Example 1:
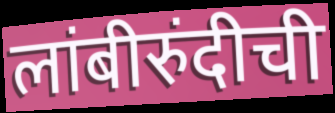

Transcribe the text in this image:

लांबीरुंदीची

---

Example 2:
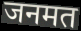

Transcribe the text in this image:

जनमत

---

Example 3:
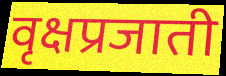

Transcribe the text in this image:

वृक्षप्रजाती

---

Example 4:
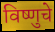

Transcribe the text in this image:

विष्णुचे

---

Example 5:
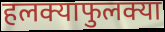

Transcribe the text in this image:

हलक्याफुलक्या